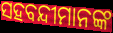
ସହବନ୍ଦୀମାନଙ୍କ